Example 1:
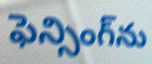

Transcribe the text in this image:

ఫెన్సింగ్‌ను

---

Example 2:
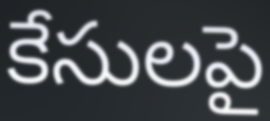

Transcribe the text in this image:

కేసులపై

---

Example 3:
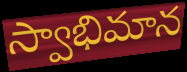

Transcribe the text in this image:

స్వాభిమాన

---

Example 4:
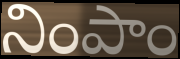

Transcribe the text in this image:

నింపాం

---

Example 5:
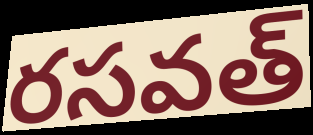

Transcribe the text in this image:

రసవత్